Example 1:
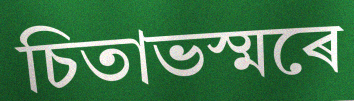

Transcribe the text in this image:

চিতাভস্মৰে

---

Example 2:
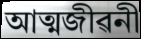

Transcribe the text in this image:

আত্মজীৱনী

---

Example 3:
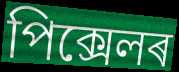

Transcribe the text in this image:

পিক্সেলৰ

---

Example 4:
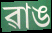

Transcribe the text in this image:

ৱাঙ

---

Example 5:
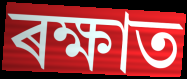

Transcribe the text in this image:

ৰক্ষাত